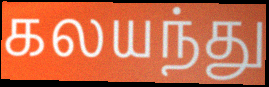
கலயந்து